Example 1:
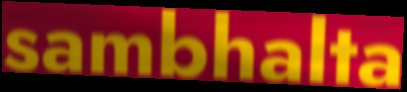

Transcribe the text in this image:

sambhalta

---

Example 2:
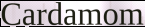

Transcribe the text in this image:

Cardamom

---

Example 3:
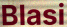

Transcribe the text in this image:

Blasi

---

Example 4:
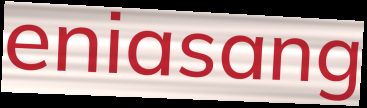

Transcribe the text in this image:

eniasang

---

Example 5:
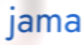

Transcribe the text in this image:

jama